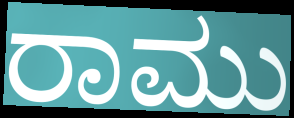
ರಾಮು